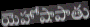
యెహోషాపాతు